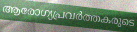
ആരോഗ്യപ്രവർത്തകരുടെ